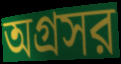
অগ্রসর